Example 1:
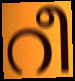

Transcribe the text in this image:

റീ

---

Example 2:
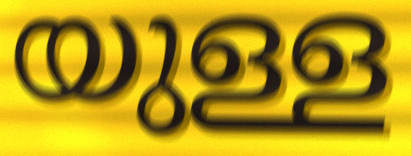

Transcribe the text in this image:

യുള്ള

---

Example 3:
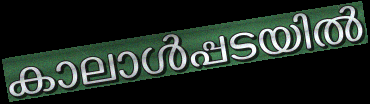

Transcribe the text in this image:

കാലാൾപ്പടയിൽ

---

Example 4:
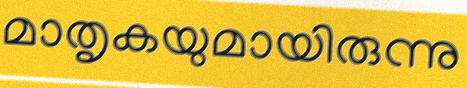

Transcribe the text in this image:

മാതൃകയുമായിരുന്നു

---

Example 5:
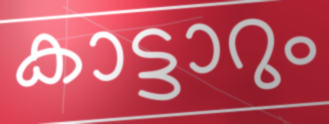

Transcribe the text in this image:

കാട്ടാറും